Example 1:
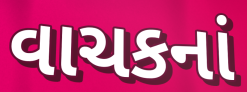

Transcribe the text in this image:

વાચકનાં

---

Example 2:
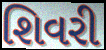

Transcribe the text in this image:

શિવરી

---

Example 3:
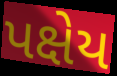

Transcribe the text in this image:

પક્ષેય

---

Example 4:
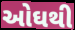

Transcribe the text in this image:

ઓઘથી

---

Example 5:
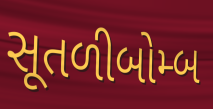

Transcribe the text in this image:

સૂતળીબોમ્બ